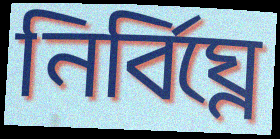
নিৰ্বিঘ্নে